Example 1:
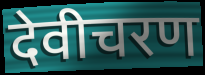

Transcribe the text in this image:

देवीचरण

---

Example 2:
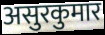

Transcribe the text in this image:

असुरकुमार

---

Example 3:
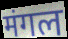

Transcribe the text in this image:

मंगल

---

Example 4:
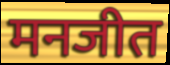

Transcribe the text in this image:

मनजीत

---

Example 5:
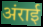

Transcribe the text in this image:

अंराई